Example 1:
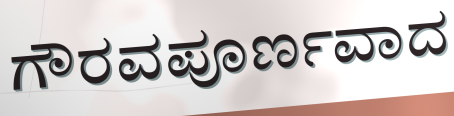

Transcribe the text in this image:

ಗೌರವಪೂರ್ಣವಾದ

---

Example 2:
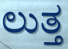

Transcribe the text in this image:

ಲುತ್ತ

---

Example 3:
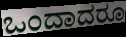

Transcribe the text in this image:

ಒಂದಾದರೂ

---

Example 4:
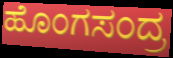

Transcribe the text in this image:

ಹೊಂಗಸಂದ್ರ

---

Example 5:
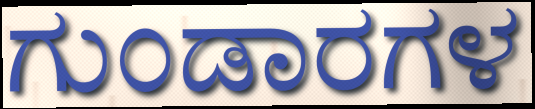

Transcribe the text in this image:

ಗುಂಡಾರಗಳ